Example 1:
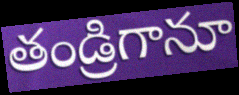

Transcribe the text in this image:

తండ్రిగానూ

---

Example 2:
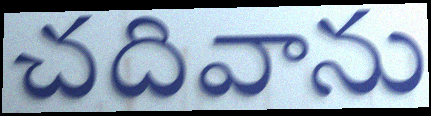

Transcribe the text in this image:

చదివాను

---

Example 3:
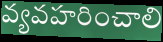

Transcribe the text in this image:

వ్యవహరించాలి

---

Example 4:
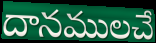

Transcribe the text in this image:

దానములచే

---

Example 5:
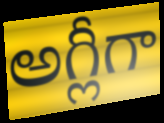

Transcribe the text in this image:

అగ్లీగా